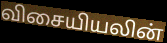
விசையியலின்